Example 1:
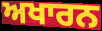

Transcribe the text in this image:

ਅਖਾਰਨ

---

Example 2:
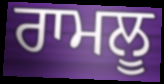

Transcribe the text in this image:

ਰਾਮਲੂ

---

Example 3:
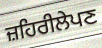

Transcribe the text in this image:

ਜ਼ਹਿਰੀਲੇਪਣ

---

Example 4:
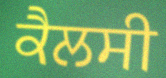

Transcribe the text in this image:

ਕੈਲਸੀ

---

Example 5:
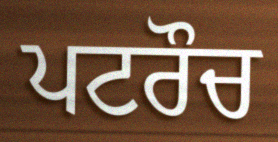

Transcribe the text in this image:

ਪਟਰੌਚ